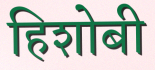
हिशोबी